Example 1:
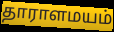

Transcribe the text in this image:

தாராளமயம்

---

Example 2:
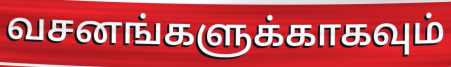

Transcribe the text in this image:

வசனங்களுக்காகவும்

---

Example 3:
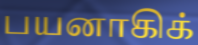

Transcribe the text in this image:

பயனாகிக்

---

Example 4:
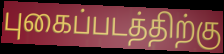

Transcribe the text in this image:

புகைப்படத்திற்கு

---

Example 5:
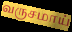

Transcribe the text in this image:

வருசமாய்